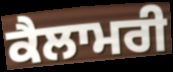
ਕੈਲਾਮਰੀ